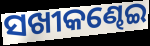
ସଖୀକଣ୍ଢେଇ